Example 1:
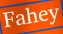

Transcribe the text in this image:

Fahey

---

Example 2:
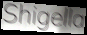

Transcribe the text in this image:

Shigella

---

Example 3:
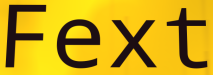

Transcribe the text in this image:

Fext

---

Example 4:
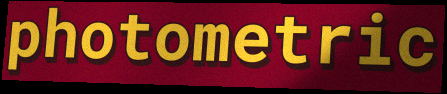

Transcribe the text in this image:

photometric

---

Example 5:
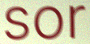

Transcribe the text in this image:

sor